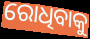
ରୋଧିବାକୁ